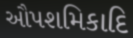
ઔપશમિકાદિ